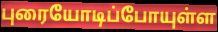
புரையோடிப்போயுள்ள